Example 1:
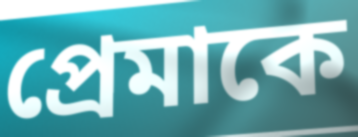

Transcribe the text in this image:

প্রেমাকে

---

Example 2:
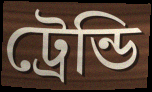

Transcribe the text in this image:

ট্রেন্ডি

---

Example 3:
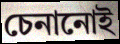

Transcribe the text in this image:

চেনানোই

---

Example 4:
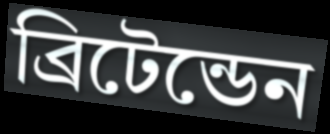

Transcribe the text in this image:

ব্রিটেন্ডেন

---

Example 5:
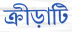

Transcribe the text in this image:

ক্রীড়াটি